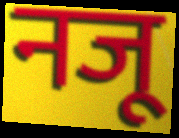
नजू